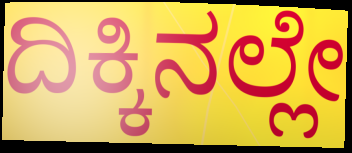
ದಿಕ್ಕಿನಲ್ಲೇ